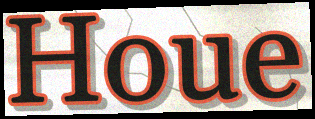
Houe